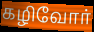
கழிவோர்